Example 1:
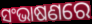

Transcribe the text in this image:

ସଂଭାଷଣରେ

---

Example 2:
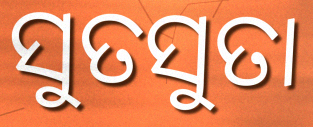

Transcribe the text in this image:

ସୁତସୁତା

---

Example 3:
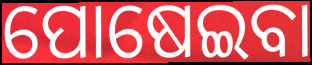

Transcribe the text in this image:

ପୋଷେଇବା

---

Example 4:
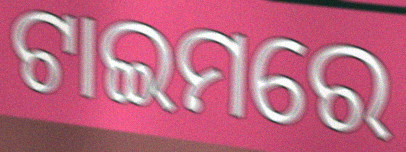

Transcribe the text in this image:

ଟାଇମରେ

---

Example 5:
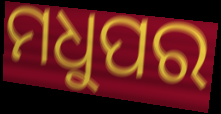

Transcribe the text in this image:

ମଧୁପର